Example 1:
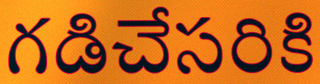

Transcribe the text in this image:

గడిచేసరికి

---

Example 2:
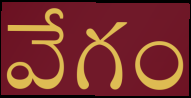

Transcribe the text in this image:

వేగం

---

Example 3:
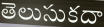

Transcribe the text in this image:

తెలుసుకదా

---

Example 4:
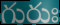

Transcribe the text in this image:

గురుః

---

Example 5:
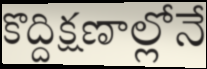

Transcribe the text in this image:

కొద్దిక్షణాల్లోనే